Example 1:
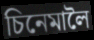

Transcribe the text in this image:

চিনেমালৈ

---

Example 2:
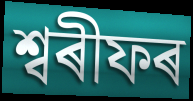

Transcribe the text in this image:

শ্বৰীফৰ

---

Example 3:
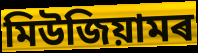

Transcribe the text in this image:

মিউজিয়ামৰ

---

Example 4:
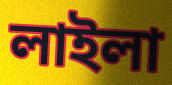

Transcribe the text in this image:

লাইলা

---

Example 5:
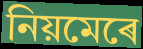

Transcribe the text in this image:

নিয়মেৰে